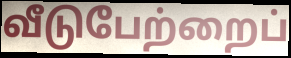
வீடுபேற்றைப்